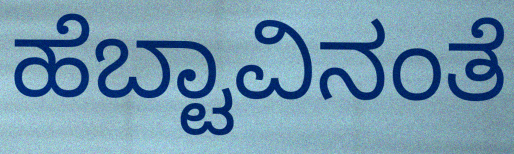
ಹೆಬ್ಟಾವಿನಂತೆ